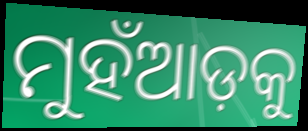
ମୁହଁଆଡ଼କୁ